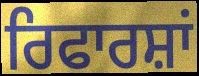
ਰਿਫਾਰਸ਼ਾਂ